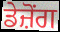
ਡੇਜ਼ੋਂਗ